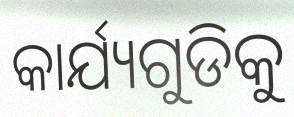
କାର୍ଯ୍ୟଗୁଡିକୁ